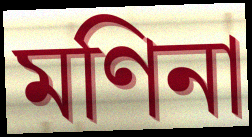
মণিনা